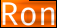
Ron